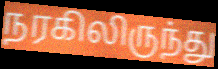
நரகிலிருந்து